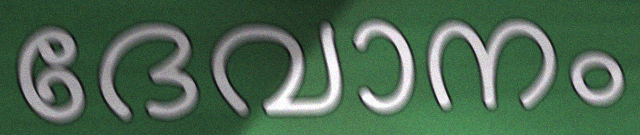
ദേവാനം